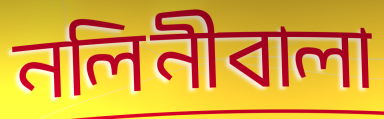
নলিনীবালা